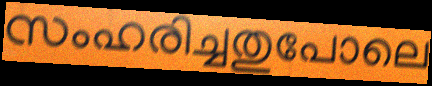
സംഹരിച്ചതുപോലെ